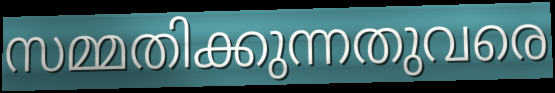
സമ്മതിക്കുന്നതുവരെ